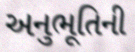
અનુભૂતિની